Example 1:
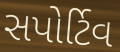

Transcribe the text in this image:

સપોર્ટિવ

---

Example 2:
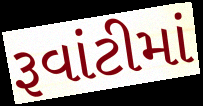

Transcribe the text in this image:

રૂવાંટીમાં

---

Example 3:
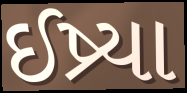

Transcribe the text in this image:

ઈષ્ર્યા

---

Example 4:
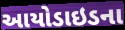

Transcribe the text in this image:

આયોડાઇડના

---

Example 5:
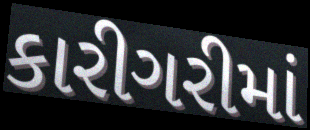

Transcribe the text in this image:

કારીગરીમાં